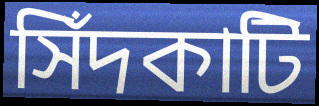
সিঁদকাটি